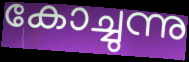
കോച്ചുന്നു